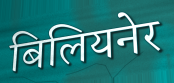
बिलियनेर